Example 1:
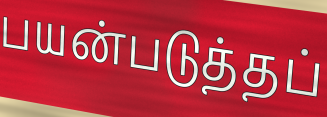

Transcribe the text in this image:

பயன்படுத்தப்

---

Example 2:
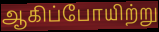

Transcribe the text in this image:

ஆகிப்போயிற்று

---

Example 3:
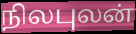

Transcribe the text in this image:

நிலபுலன்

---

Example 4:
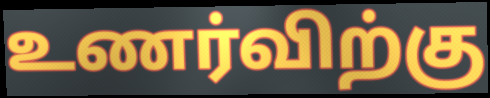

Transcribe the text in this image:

உணர்விற்கு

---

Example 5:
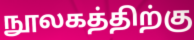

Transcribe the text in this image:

நூலகத்திற்கு